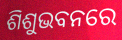
ଶିଶୁଭବନରେ